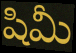
షిమీ